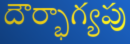
దౌర్భాగ్యపు